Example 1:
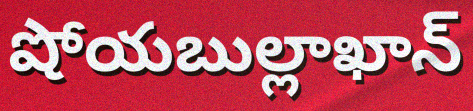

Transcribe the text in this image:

షోయబుల్లాఖాన్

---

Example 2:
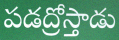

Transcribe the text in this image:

పడద్రోస్తాడు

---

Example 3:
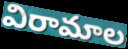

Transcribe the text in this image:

విరామాల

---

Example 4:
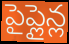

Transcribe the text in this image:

పైప్లైన్ల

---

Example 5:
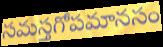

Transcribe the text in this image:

సమస్తగోపమానసం